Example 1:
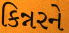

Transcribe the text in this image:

કિન્નરને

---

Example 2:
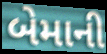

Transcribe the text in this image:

બેમાની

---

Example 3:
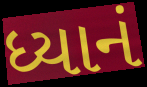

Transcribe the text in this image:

ધ્યાનં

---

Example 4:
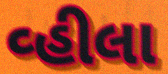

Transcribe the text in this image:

વ્હીલા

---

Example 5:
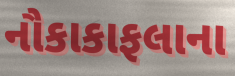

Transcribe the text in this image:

નૌકાકાફલાના